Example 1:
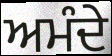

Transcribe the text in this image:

ਅਮੰਦੇ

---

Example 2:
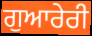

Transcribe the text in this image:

ਗੁਆਰੇਰੀ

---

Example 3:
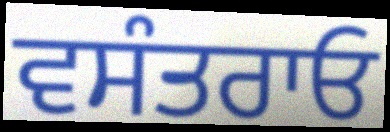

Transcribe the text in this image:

ਵਸੰਤਰਾਓ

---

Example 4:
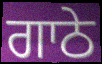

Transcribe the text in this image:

ਗਾਠੇ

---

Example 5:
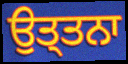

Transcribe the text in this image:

ਉਤ੍ਤਨਾ